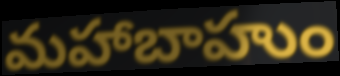
మహాబాహుం